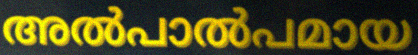
അൽപാൽപമായ